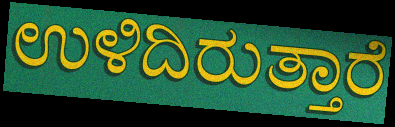
ಉಳಿದಿರುತ್ತಾರೆ